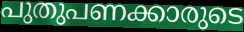
പുതുപണക്കാരുടെ